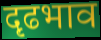
दृढभाव